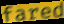
fared